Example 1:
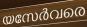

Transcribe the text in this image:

യസേർവരെ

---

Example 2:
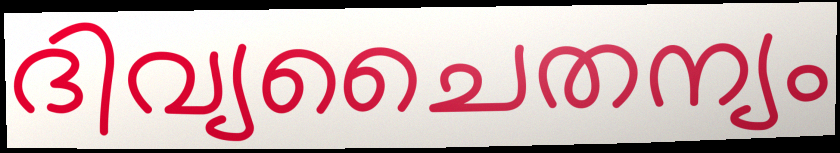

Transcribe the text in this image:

ദിവ്യചൈതന്യം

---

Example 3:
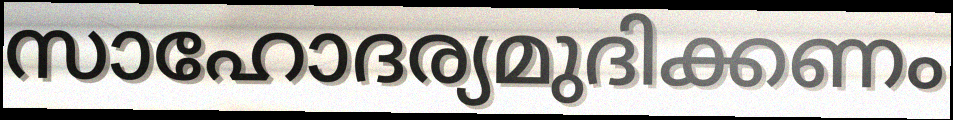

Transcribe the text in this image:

സാഹോദര്യമുദിക്കണം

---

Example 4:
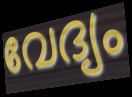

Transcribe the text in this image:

വേദ്യം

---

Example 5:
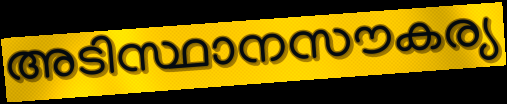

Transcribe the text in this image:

അടിസ്ഥാനസൗകര്യ